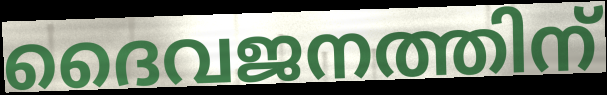
ദൈവജനത്തിന്